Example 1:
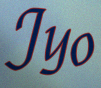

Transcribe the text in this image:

Jyo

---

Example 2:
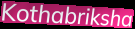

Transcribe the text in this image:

Kothabriksha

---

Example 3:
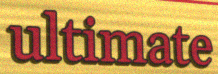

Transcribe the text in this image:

ultimate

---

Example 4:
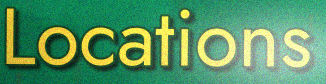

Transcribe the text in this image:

Locations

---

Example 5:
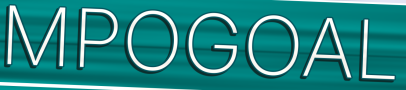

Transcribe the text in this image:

MPOGOAL